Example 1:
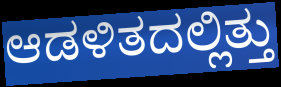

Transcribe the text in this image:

ಆಡಳಿತದಲ್ಲಿತ್ತು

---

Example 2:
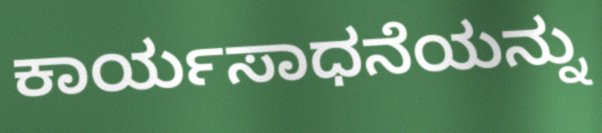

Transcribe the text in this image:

ಕಾರ್ಯಸಾಧನೆಯನ್ನು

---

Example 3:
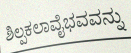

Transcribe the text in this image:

ಶಿಲ್ಪಕಲಾವೈಭವವನ್ನು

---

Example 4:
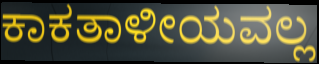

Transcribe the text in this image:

ಕಾಕತಾಳೀಯವಲ್ಲ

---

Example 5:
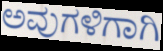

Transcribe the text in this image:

ಅವುಗಳಿಗಾಗಿ